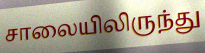
சாலையிலிருந்து